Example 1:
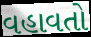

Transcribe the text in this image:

વહાવતો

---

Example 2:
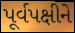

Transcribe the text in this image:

પૂર્વપક્ષીને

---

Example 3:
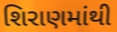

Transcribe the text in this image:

શિરાણમાંથી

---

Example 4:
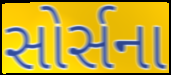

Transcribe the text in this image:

સોર્સના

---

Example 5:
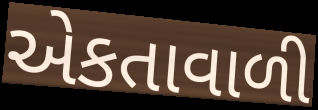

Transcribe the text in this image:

એકતાવાળી